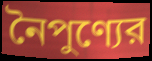
নৈপুণ্যের